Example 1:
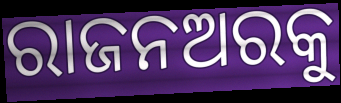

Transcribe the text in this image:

ରାଜନଅରକୁ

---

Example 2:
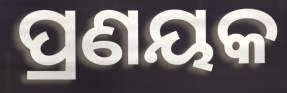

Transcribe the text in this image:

ପ୍ରଣୟକ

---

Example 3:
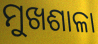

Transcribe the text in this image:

ମୁଖଶାଳା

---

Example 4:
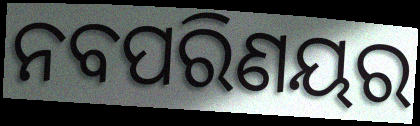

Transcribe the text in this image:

ନବପରିଣୟର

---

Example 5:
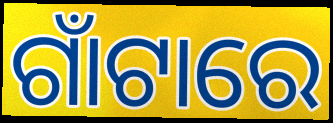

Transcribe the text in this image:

ଗାଁଟାରେ